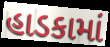
હાડકામાં